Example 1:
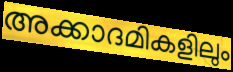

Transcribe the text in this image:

അക്കാദമികളിലും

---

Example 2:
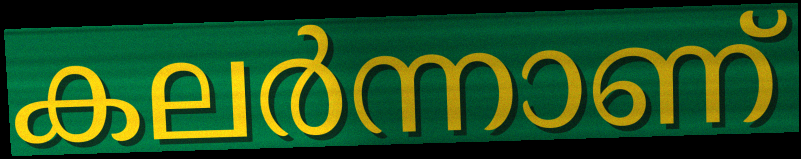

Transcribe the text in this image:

കലർന്നാണ്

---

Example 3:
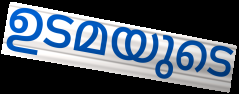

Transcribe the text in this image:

ഉടമയുടെ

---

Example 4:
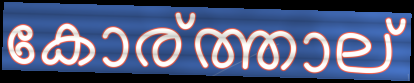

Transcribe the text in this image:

കോര്ത്താല്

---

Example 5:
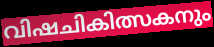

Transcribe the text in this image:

വിഷചികിത്സകനും